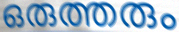
ഒരുത്തരും